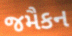
જમૈકન